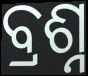
ବ୍ରଶ୍ନ